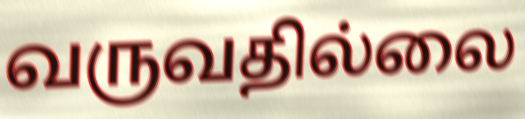
வருவதில்லை